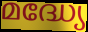
മദ്ധ്യേ